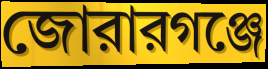
জোরারগঞ্জে